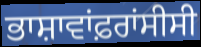
ਭਾਸ਼ਾਵਾਂਫ਼ਰਾਂਸੀਸੀ